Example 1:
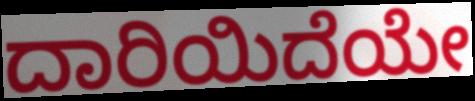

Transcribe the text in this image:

ದಾರಿಯಿದೆಯೇ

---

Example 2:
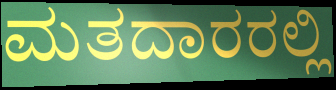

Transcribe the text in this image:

ಮತದಾರರಲ್ಲಿ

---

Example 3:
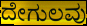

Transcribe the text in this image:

ದೇಗುಲವು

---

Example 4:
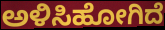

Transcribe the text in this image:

ಅಳಿಸಿಹೋಗಿದೆ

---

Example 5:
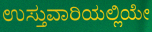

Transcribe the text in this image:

ಉಸ್ತುವಾರಿಯಲ್ಲಿಯೇ